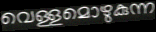
വെള്ളമൊഴുകുന്ന